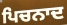
ਪਿਚਨਾਦ